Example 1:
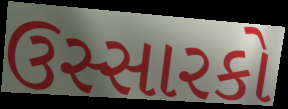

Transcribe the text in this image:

ઉસ્સારકો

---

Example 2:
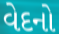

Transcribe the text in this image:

વેદનો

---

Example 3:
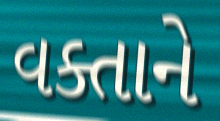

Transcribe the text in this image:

વક્તાને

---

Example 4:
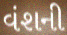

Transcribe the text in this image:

વંશની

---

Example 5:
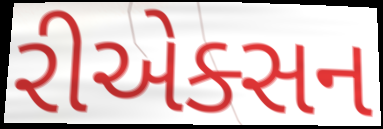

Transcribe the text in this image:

રીએક્સન